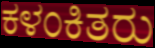
ಕಳಂಕಿತರು